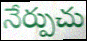
నేర్పుచు